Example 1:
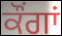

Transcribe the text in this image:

ਕੌਂਗਾਂ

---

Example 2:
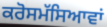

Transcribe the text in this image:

ਕਰੋਸਮੱਸਿਆਵਾਂ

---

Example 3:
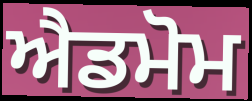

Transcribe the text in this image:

ਐਡਮੋਮ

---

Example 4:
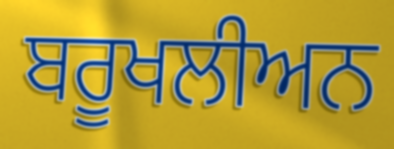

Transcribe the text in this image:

ਬਰੂਖਲੀਅਨ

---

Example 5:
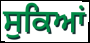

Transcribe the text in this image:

ਸੁਕਿਆਂ